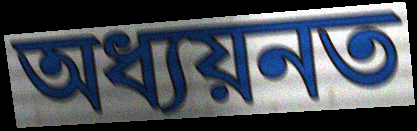
অধ্য়য়নত